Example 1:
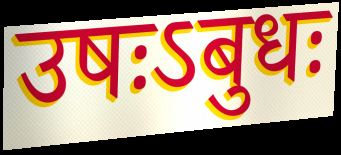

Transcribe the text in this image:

उषःऽबुधः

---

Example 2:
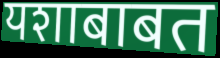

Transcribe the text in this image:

यशाबाबत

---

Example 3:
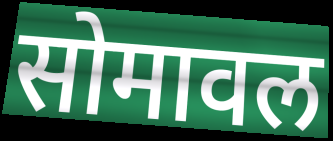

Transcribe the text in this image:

सोमावल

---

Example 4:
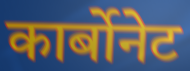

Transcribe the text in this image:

कार्बोनेट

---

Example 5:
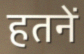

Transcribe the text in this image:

हतनें